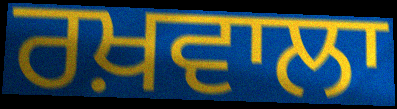
ਰਖ਼ਵਾਲਾ